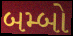
બમ્બો